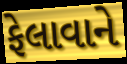
ફેલાવાને